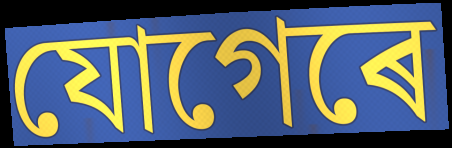
যোগেৰে